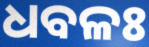
ଧବଳଃ